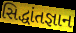
સિદ્ધાંતજ્ઞાન